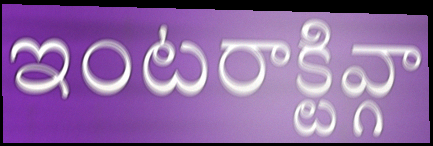
ఇంటరాక్టివ్గా